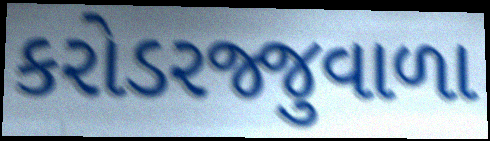
કરોડરજ્જુવાળા